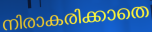
നിരാകരിക്കാതെ